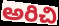
అరిచి